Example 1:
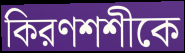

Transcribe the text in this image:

কিরণশশীকে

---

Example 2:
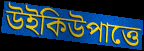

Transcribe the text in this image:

উইকিউপাত্তে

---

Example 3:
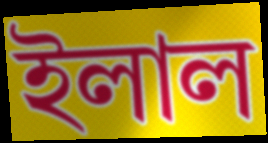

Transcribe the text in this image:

ইলাল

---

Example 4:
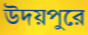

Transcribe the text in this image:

উদয়পুরে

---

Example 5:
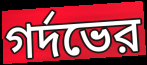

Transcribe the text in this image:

গর্দভের